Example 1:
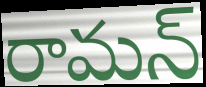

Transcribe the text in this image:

రామన్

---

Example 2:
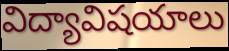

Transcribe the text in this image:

విద్యావిషయాలు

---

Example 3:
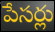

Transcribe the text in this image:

పేసర్లు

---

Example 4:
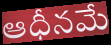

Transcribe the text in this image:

ఆధీనమే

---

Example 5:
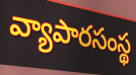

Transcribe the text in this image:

వ్యాపారసంస్థ